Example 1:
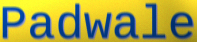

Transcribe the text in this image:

Padwale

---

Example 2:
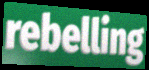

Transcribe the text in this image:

rebelling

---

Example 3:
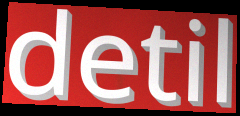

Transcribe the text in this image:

detil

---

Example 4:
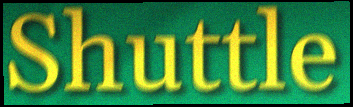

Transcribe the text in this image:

Shuttle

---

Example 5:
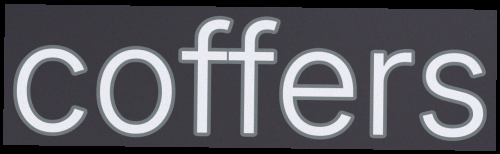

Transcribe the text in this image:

coffers